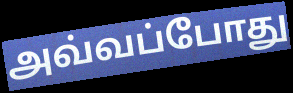
அவ்வப்போது